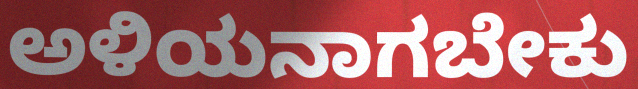
ಅಳಿಯನಾಗಬೇಕು